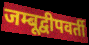
जम्बूद्वीपवर्ती